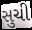
સુચી